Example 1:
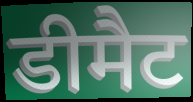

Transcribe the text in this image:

डीमैट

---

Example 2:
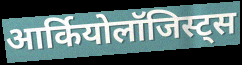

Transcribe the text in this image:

आर्कियोलॉजिस्ट्स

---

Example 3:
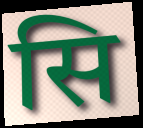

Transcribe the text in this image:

सि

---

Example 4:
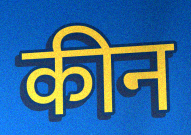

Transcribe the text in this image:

कीन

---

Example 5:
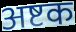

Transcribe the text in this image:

अष्टक